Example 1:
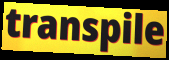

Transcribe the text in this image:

transpile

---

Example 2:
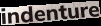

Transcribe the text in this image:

indenture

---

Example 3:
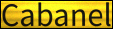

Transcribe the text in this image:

Cabanel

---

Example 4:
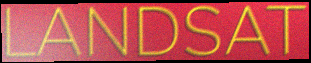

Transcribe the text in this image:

LANDSAT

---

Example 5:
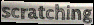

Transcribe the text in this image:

scratching